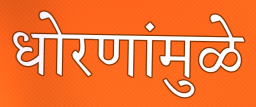
धोरणांमुळे